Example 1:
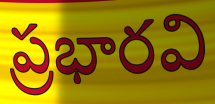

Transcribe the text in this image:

ప్రభారవి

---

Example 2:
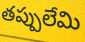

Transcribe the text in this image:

తప్పులేమి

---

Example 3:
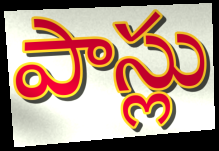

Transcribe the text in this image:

పాస్లు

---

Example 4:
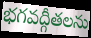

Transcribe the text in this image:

భగవద్గీతలను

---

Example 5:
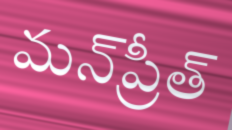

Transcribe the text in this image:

మన్‌ప్రీత్